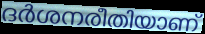
ദർശനരീതിയാണ്